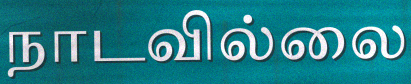
நாடவில்லை